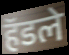
हॅडले